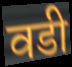
वडी